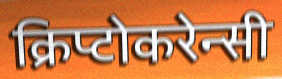
क्रिप्टोकरेन्सी